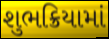
શુભક્રિયામાં